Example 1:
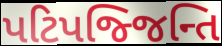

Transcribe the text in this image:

પટિપજ્જિન્તિ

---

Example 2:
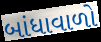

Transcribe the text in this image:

બાંધાવાળો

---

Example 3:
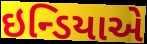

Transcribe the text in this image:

ઇન્ડિયાએ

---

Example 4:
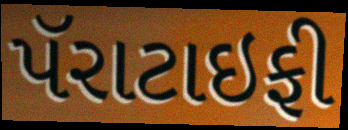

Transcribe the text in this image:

પૅરાટાઇફી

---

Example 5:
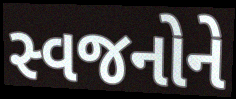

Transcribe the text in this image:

સ્વજનોને